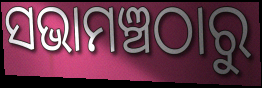
ସଭାମଞ୍ଚଠାରୁ